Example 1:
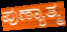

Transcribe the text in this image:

ಪುಣ್ಯಾತ್ಮ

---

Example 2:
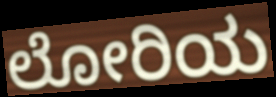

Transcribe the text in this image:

ಲೋರಿಯ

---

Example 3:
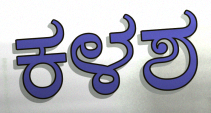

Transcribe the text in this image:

ಕಳಶ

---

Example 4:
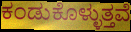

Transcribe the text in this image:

ಕಂಡುಕೊಳ್ಳುತ್ತವೆ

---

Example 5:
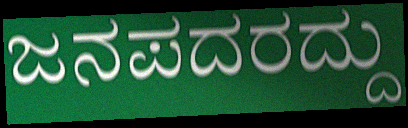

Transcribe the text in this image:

ಜನಪದರದ್ದು